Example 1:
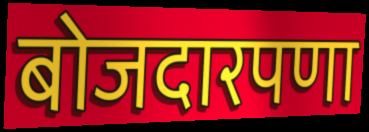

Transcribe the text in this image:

बोजदारपणा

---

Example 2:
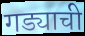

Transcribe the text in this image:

गड्याची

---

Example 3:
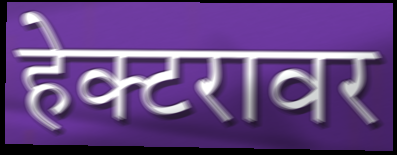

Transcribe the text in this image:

हेक्टरावर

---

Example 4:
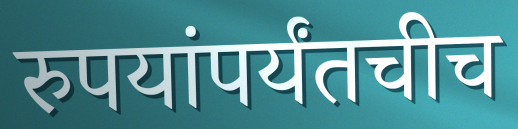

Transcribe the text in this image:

रुपयांपर्यंतचीच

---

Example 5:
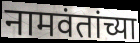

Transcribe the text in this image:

नामवंतांच्या